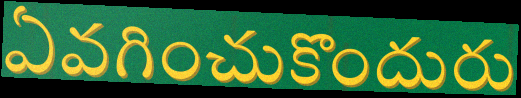
ఏవగించుకొందురు